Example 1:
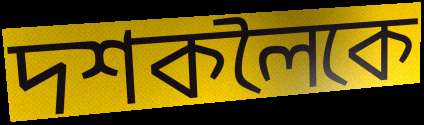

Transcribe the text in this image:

দশকলৈকে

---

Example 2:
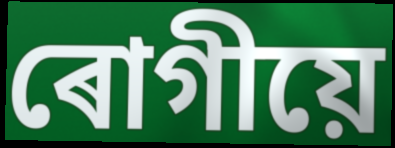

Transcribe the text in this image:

ৰোগীয়ে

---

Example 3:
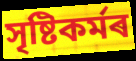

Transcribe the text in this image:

সৃষ্টিকৰ্মৰ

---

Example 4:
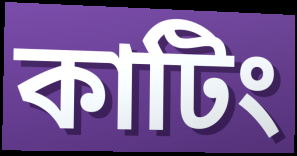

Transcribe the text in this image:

কাটিং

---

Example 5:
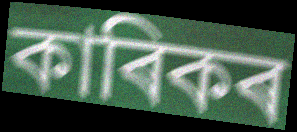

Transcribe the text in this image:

কাৰিকৰ